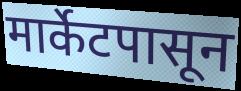
मार्केटपासून